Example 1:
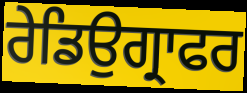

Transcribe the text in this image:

ਰੇਡਿਉਗ੍ਰਾਫਰ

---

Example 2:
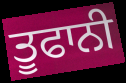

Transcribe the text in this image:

ਤੂਫਾਨੀ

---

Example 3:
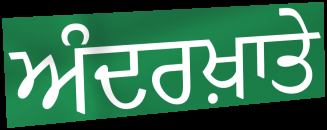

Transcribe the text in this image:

ਅੰਦਰਖ਼ਾਤੇ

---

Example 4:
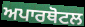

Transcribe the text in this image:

ਅਪਾਰਥੋਟਲ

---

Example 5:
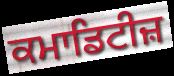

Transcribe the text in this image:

ਕਮਾਡਿਟੀਜ਼